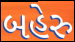
બહેરુ